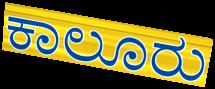
ಕಾಲೂರು